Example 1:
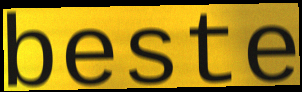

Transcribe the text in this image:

beste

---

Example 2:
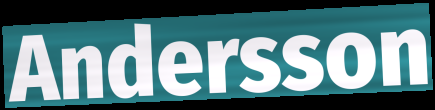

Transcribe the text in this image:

Andersson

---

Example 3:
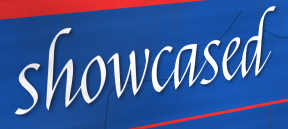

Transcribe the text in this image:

showcased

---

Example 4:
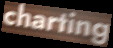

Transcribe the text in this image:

charting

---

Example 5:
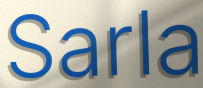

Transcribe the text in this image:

Sarla